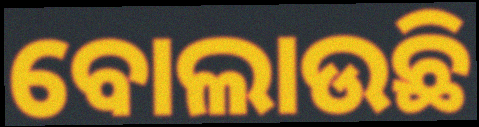
ବୋଲାଉଛି